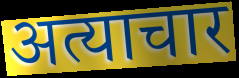
अत्‍याचार